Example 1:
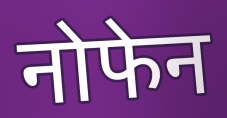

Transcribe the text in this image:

नोफेन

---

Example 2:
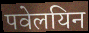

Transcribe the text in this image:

पवेलयिन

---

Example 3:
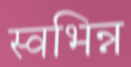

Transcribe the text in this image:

स्वभिन्न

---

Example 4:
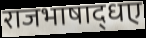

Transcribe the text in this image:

राजभाषाद्धए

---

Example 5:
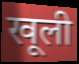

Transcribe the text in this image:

खूली